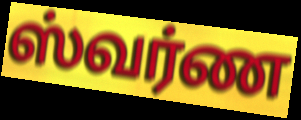
ஸ்வர்ண